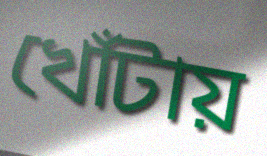
খোঁটায়